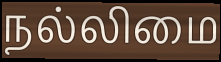
நல்லிமை